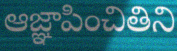
ఆజ్ఞాపించితిని